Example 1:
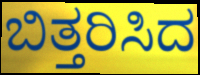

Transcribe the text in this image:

ಬಿತ್ತರಿಸಿದ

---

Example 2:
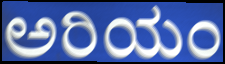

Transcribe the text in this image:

ಅರಿಯಂ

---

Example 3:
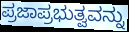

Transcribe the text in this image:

ಪ್ರಜಾಪ್ರಭುತ್ವವನ್ನು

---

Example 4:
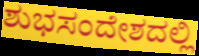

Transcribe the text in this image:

ಶುಭಸಂದೇಶದಲ್ಲಿ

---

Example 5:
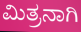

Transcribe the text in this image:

ಮಿತ್ರನಾಗಿ